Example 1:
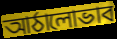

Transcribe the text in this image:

আঠালোভাব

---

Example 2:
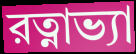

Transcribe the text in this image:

রত্নাভ্যা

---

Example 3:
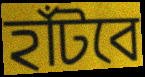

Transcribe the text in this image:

হাঁটবে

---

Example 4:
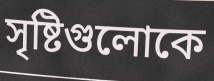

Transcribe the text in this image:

সৃষ্টিগুলোকে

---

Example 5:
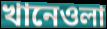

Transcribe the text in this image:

খানেওলা